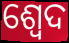
ଶ୍ଵେଦ